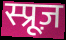
स्प्रूज़